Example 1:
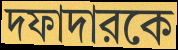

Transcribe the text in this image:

দফাদারকে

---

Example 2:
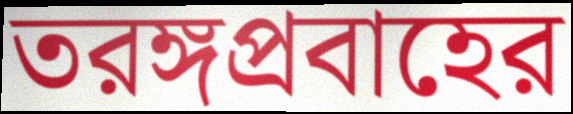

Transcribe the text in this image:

তরঙ্গপ্রবাহের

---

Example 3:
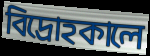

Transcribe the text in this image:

বিদ্রোহকালে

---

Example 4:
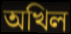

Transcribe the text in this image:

অখিল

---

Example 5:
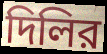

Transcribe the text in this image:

দিলির